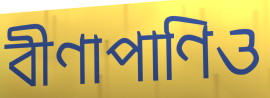
বীণাপাণিও